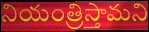
నియంత్రిస్తామని